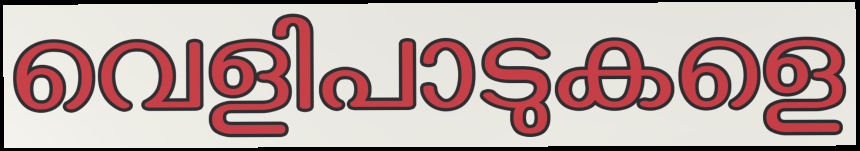
വെളിപാടുകളെ